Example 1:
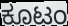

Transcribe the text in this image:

ಕೂಟಂ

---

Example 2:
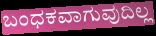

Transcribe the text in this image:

ಬಂಧಕವಾಗುವುದಿಲ್ಲ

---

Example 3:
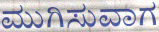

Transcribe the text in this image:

ಮುಗಿಸುವಾಗ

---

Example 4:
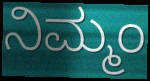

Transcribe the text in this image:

ನಿಮ್ಮಂ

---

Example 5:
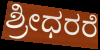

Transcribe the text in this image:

ಶ್ರೀಧರರೆ